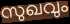
സുഖവും